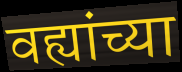
वह्यांच्या